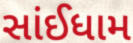
સાંઈધામ